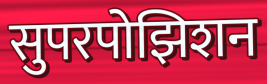
सुपरपोझिशन